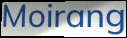
Moirang